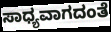
ಸಾಧ್ಯವಾಗದಂತೆ